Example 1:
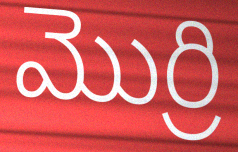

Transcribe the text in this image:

మొర్రి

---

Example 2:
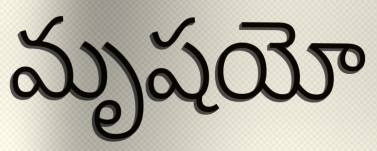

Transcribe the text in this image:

మృషయో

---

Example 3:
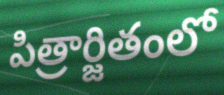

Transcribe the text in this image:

పిత్రార్జితంలో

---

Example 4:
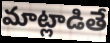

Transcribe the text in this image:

మాట్లాడితే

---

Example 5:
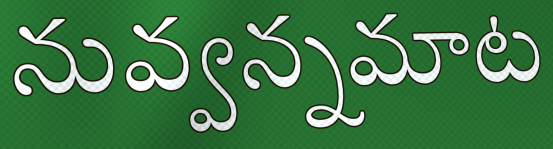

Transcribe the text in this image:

నువ్వన్నమాట